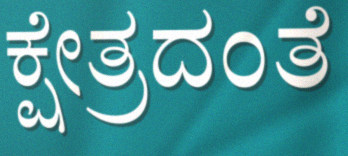
ಕ್ಷೇತ್ರದಂತೆ